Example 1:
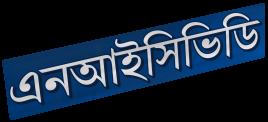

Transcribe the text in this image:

এনআইসিভিডি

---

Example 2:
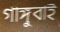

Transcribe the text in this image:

গাঙ্গুবাই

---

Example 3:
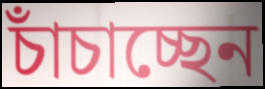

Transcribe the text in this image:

চাঁচাচ্ছেন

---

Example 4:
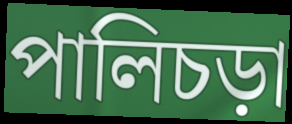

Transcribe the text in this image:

পালিচড়া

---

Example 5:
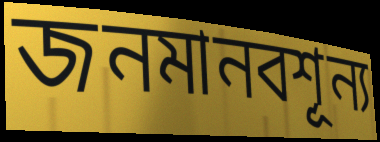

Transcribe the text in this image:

জনমানবশূন্য